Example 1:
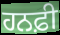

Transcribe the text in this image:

ਹਨਫ਼ੀ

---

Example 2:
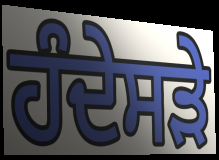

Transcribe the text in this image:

ਹੰਦੇਸੜੇ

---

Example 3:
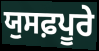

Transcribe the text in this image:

ਯੁਸਫ਼ਪੂਰੇ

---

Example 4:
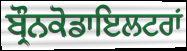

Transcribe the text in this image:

ਬ੍ਰੌਨਕੋਡਾਇਲਟਰਾਂ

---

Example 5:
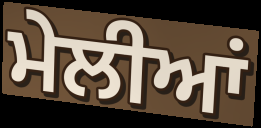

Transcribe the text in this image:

ਮੇਲੀਆਂ